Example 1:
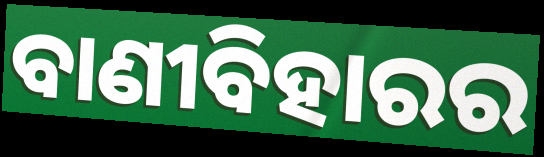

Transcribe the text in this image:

ବାଣୀବିହାରର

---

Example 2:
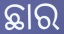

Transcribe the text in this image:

ଛାର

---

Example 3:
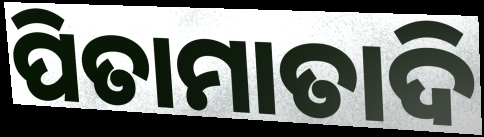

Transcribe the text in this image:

ପିତାମାତାଦି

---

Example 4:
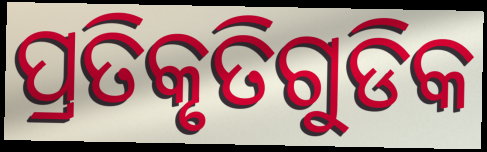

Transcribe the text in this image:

ପ୍ରତିକୃତିଗୁଡିକ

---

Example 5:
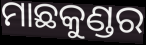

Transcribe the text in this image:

ମାଛକୁଣ୍ଡର